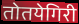
तोतयेगिरी